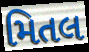
મિતલ